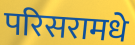
परिसरामधे